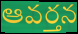
ఆవర్తన